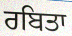
ਰਬਿਤਾ